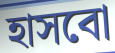
হাসবো